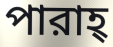
পারাহ্